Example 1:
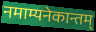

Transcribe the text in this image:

नमाम्यनेकान्तम्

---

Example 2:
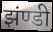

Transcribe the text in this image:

झंण्डी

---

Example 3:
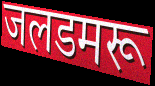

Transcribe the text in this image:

जलडमरू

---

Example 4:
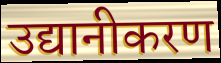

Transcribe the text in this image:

उद्यानीकरण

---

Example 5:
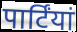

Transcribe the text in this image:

पार्टिंयां